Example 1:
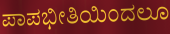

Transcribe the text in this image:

ಪಾಪಭೀತಿಯಿಂದಲೂ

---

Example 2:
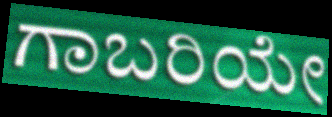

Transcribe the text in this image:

ಗಾಬರಿಯೇ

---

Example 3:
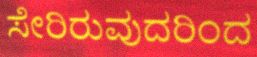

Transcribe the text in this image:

ಸೇರಿರುವುದರಿಂದ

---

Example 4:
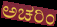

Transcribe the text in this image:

ಅಚರಿಂ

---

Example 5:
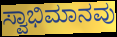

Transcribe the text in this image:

ಸ್ವಾಭಿಮಾನವು